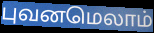
புவனமெலாம்